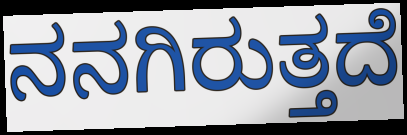
ನನಗಿರುತ್ತದೆ